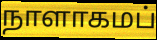
நாளாகமப்